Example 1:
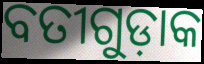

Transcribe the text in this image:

ବତୀଗୁଡ଼ାକ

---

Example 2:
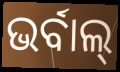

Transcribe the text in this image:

ଭର୍ବାଲ୍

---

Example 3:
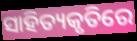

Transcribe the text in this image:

ସାହିତ୍ୟକୃତିରେ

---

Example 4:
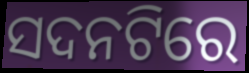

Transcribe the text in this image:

ସଦନଟିରେ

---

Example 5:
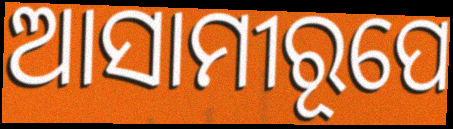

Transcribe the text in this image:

ଆସାମୀରୂପେ